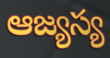
ఆజ్యస్య